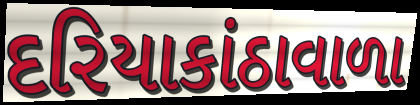
દરિયાકાંઠાવાળા